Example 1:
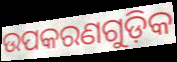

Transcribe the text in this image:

ଉପକରଣଗୁଡ଼ିକ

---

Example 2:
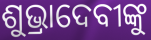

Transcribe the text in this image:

ଶୁଭ୍ରାଦେବୀଙ୍କୁ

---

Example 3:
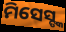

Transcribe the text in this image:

ମିସେସ୍ଙ୍କ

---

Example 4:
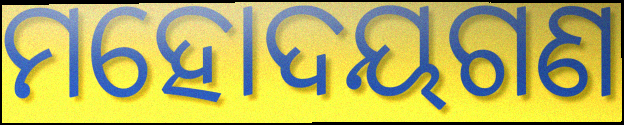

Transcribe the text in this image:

ମହୋଦୟଗଣ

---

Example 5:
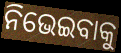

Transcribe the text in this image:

ନିଭେଇବାକୁ